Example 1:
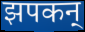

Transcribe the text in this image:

झपकन्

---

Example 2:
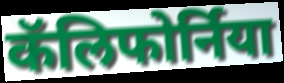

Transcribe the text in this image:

कॅलिफोर्निया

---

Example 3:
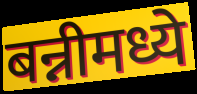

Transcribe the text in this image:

बन्नीमध्ये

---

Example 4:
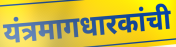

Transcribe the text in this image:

यंत्रमागधारकांची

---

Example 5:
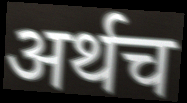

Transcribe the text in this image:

अर्थच